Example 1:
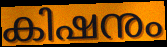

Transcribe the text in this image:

കിഷനും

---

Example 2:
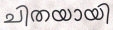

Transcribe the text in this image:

ചിതയായി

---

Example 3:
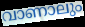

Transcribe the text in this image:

വാണാലും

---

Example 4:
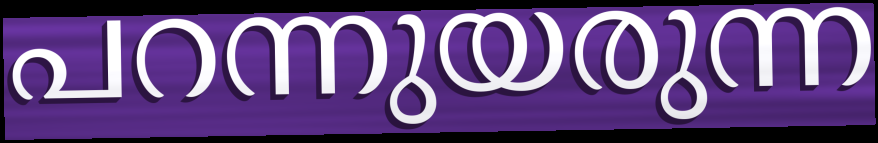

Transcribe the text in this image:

പറന്നുയരുന്ന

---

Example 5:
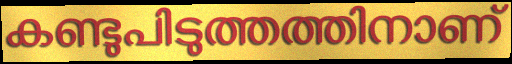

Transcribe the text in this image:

കണ്ടുപിടുത്തത്തിനാണ്